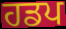
ਹਡਪ